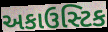
અકાઉસ્ટિક